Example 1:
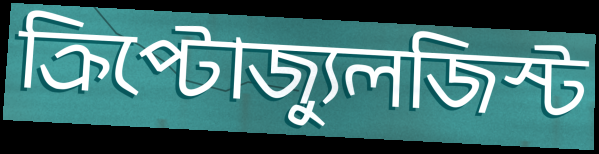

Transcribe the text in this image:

ক্রিপ্টোজ্যুলজিস্ট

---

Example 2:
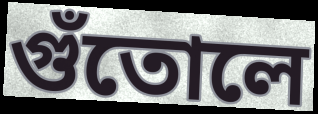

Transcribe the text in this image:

গুঁতোলে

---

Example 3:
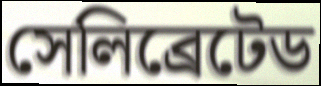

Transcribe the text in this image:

সেলিব্রেটেড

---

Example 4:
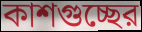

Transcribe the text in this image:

কাশগুচ্ছের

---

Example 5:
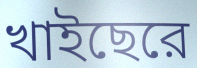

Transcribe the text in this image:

খাইছেরে